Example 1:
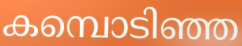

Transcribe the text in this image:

കമ്പൊടിഞ്ഞ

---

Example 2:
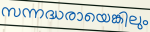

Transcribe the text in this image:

സന്നദ്ധരായെങ്കിലും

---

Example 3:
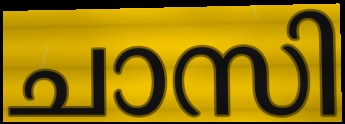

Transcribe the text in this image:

ചാസി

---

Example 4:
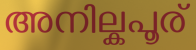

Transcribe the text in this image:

അനില്കപൂര്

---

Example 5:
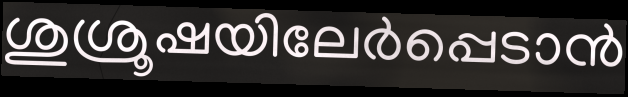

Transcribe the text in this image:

ശുശ്രൂഷയിലേർപ്പെടാൻ